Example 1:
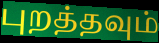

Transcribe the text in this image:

புறத்தவும்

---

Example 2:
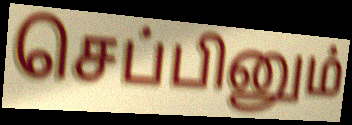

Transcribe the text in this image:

செப்பினும்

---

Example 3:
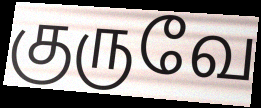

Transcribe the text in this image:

குருவே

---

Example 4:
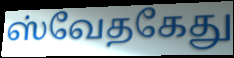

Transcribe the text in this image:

ஸ்வேதகேது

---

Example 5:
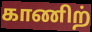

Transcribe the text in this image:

காணிற்